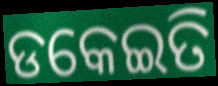
ଡକେଇତି